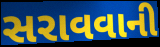
સરાવવાની